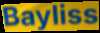
Bayliss